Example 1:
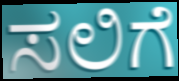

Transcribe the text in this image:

ಸಲಿಗೆ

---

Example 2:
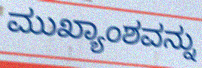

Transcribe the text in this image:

ಮುಖ್ಯಾಂಶವನ್ನು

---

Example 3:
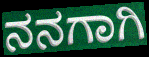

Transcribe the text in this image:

ನನಗಾಗಿ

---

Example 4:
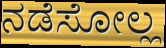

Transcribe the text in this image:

ನಡೆಸೋಲ್ಲ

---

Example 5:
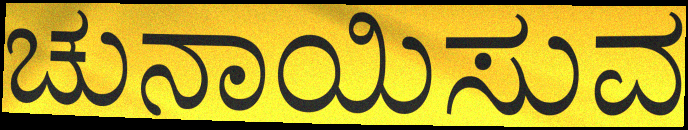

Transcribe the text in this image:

ಚುನಾಯಿಸುವ